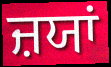
ਜ਼ਯਾਂ